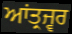
ਆਂਤ੍ਰਜ੍ਵਰ